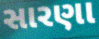
સારણા